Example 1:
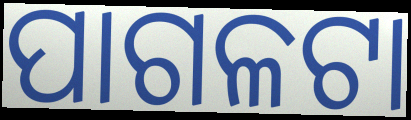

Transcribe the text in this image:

ପାଗଳଟା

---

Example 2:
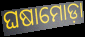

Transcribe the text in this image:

ଘଷାମୋଡ଼ା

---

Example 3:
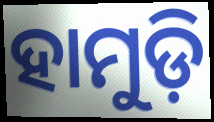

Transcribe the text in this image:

ହାମୁଡ଼ି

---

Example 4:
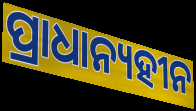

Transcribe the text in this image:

ପ୍ରାଧାନ୍ୟହୀନ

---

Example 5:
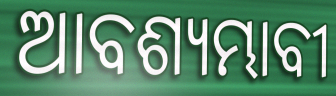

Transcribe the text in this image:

ଆବଶ୍ୟମ୍ଭାବୀ